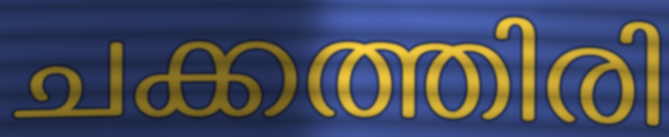
ചക്കത്തിരി